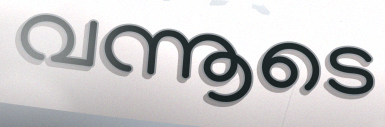
വന്നൂടെ